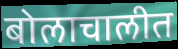
बोलाचालीत